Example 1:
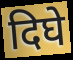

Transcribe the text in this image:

दिघे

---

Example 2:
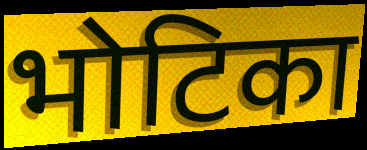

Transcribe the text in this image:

भोटिका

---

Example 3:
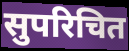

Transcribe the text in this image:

सुपरिचित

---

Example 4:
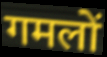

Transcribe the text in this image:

गमलों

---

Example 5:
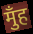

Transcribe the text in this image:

मुँह